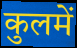
कुलमें